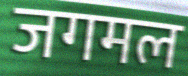
जगमल